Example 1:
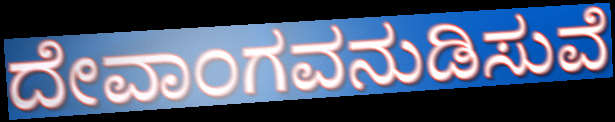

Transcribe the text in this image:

ದೇವಾಂಗವನುಡಿಸುವೆ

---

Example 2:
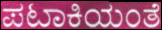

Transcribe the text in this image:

ಪಟಾಕಿಯಂತೆ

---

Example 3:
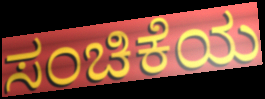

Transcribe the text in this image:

ಸಂಚಿಕೆಯ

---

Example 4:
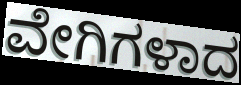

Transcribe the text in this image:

ವೇಗಿಗಳಾದ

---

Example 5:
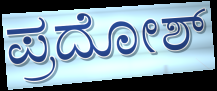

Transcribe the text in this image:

ಪ್ರದೋಶ್